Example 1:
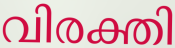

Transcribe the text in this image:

വിരക്തി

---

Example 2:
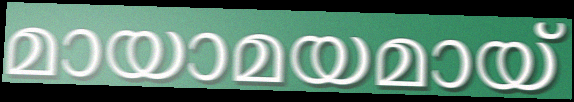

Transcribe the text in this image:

മായാമയമായ്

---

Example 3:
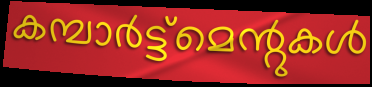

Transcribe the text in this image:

കമ്പാർട്ട്മെന്റുകൾ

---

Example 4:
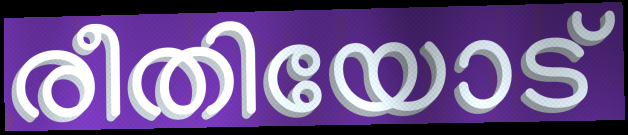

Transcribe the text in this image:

രീതിയോട്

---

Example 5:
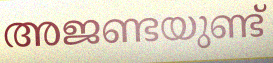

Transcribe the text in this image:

അജണ്ടയുണ്ട്